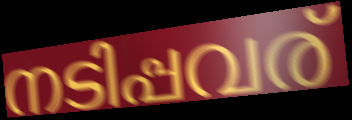
നടിപ്പവര്